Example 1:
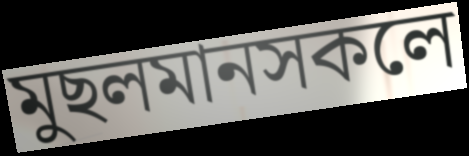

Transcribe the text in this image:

মুছলমানসকলে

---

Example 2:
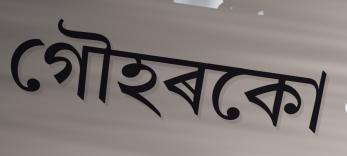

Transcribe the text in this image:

গৌহৰকো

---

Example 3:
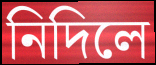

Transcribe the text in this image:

নিদিলে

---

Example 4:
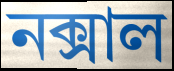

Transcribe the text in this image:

নক্সাল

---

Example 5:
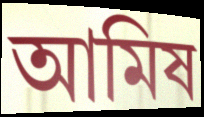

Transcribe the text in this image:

আমিষ